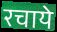
रचाये